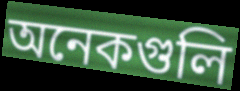
অনেকগুলি